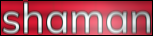
shaman